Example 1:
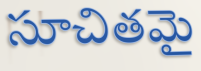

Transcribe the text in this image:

సూచితమై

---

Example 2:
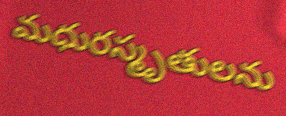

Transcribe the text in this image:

మధురస్మృతులను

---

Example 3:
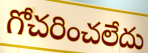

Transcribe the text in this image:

గోచరించలేదు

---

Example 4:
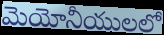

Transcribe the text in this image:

మెయోనీయులలో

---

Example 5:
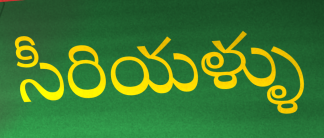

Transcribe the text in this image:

సీరియళ్ళు